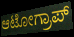
ಆಟೋಗ್ರಾಪ್